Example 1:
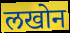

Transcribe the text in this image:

लखोन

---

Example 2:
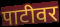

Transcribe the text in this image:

पाटीवर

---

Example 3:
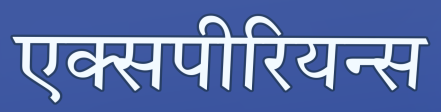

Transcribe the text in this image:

एक्सपीरियन्स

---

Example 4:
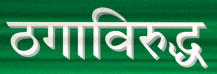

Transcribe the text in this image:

ठगाविरुद्ध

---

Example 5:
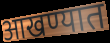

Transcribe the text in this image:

आखण्यात